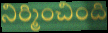
నిర్మించింది